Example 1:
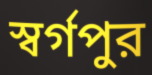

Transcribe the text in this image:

স্বর্গপুর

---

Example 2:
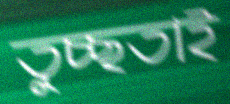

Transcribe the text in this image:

তুচ্ছতাই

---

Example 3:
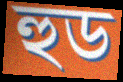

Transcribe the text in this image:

হুড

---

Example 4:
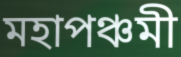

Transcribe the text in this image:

মহাপঞ্চমী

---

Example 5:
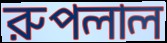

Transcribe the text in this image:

রুপলাল